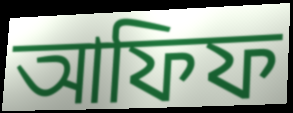
আফিফ